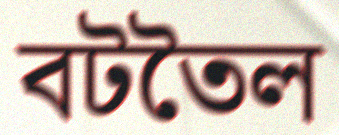
বটতৈল